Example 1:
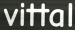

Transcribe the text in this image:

vittal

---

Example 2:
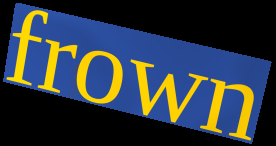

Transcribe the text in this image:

frown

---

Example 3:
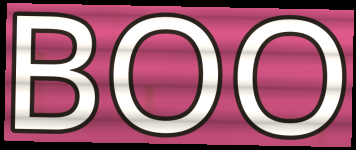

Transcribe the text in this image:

BOO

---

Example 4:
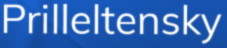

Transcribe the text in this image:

Prilleltensky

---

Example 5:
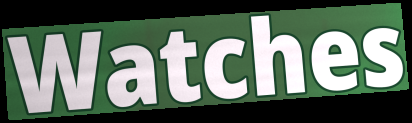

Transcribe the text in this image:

Watches